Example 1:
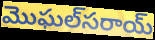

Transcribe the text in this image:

మొఘల్‌సరాయ్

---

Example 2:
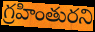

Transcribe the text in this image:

గ్రహింతురని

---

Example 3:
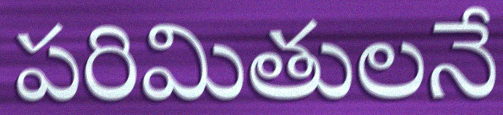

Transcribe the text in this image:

పరిమితులనే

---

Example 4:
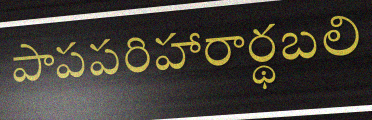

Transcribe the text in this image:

పాపపరిహారార్థబలి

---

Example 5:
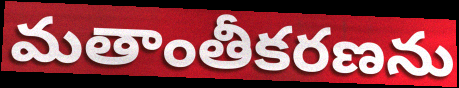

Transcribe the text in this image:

మతాంతీకరణను